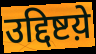
उद्दिष्टय़े